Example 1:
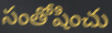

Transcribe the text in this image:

సంతోషించు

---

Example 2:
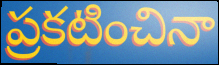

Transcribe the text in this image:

ప్రకటించినా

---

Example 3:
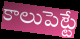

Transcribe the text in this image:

కాలుపెట్టే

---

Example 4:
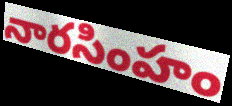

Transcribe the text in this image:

నారసింహం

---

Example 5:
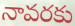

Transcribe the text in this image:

నావరకు